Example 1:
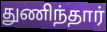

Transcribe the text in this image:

துணிந்தார்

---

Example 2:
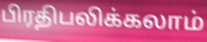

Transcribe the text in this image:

பிரதிபலிக்கலாம்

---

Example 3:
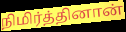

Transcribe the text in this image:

நிமிர்த்தினான்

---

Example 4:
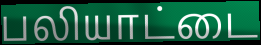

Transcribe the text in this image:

பலியாட்டை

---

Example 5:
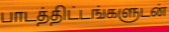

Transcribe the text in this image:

பாடத்திட்டங்களுடன்